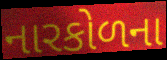
નારકોળના